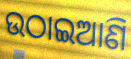
ଉଠାଇଆଣି